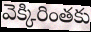
వెక్కిరింతకు